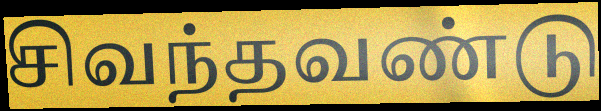
சிவந்தவண்டு